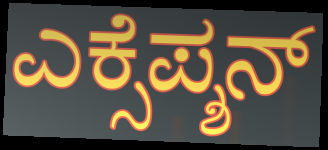
ಎಕ್ಸೆಪ್ಶನ್